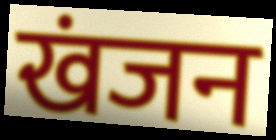
खंजन